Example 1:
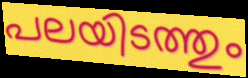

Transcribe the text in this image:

പലയിടത്തും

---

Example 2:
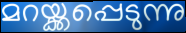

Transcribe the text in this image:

മറയ്ക്കപ്പെടുന്നു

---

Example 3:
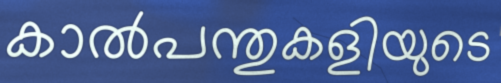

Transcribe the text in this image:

കാൽപന്തുകളിയുടെ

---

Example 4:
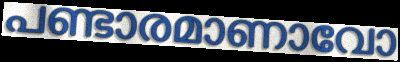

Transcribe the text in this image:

പണ്ടാരമാണാവോ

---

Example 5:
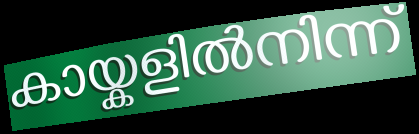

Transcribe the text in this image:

കായ്കളിൽനിന്ന്